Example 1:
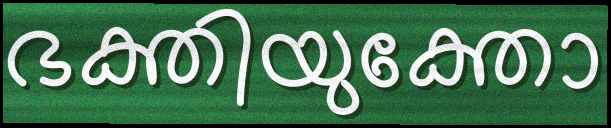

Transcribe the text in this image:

ഭക്തിയുക്തോ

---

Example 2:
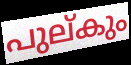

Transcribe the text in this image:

പുല്കും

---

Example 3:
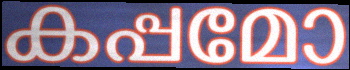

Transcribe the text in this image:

കപ്പമോ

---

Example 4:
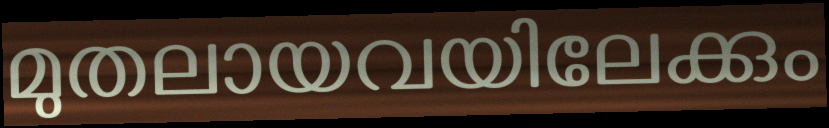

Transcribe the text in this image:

മുതലായവയിലേക്കും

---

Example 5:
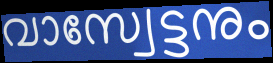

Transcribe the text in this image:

വാസ്വേട്ടനും